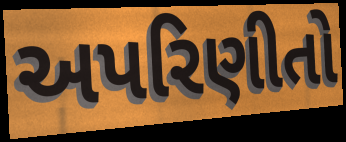
અપરિણીતો